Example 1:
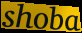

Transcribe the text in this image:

shoba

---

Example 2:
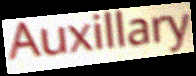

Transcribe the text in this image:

Auxillary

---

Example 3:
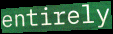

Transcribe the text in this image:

entirely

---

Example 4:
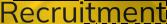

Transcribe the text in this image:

Recruitment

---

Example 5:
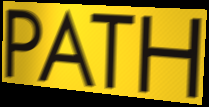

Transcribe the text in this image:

PATH